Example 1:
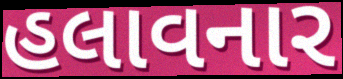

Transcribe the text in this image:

હલાવનાર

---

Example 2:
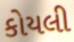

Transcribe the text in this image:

કોયલી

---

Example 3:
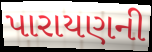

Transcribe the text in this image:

પારાયણની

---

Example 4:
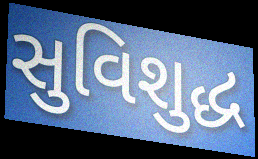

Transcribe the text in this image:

સુવિશુદ્ધ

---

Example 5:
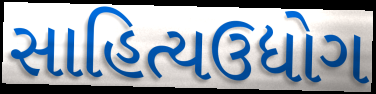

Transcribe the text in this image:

સાહિત્યઉદ્યોગ